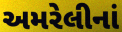
અમરેલીનાં